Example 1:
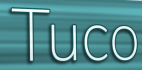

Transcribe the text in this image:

Tuco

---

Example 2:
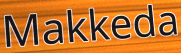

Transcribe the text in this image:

Makkeda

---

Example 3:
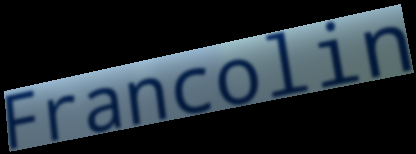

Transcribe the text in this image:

Francolin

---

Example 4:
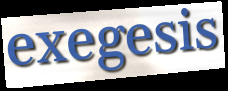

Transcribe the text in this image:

exegesis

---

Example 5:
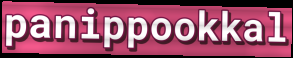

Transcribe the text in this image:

panippookkal